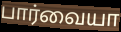
பார்வையா